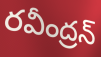
రవీంద్రన్